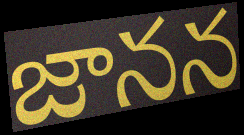
జానన